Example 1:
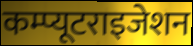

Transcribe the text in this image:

कम्प्यूटराइजेशन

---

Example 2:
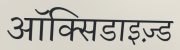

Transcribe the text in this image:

ऑक्सिडाइज़्ड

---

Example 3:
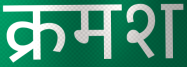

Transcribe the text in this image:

क्रमश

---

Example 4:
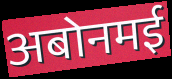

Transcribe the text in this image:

अबोनमई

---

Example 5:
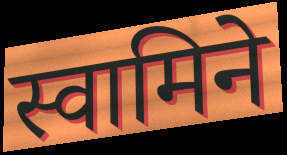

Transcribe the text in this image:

स्वामिने